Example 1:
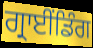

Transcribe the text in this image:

ਗ੍ਰਾਈਂਡਿੰਗ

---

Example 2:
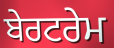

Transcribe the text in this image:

ਬੇਰਟਰੇਮ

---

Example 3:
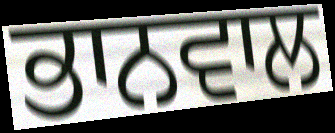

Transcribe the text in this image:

ਭਾਨਵਾਲ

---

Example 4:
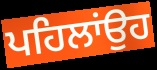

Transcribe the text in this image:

ਪਹਿਲਾਂਉਹ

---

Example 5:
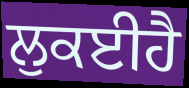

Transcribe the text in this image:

ਲੁਕਈਹੈ